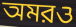
অমরও